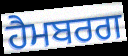
ਹੈਮਬਰਗ